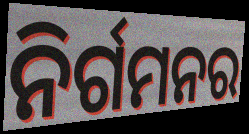
ନିର୍ଗମନର